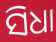
ସିଧା